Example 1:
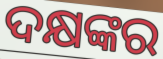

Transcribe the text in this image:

ଦକ୍ଷଙ୍କର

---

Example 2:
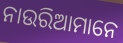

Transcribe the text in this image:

ନାଉରିଆମାନେ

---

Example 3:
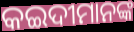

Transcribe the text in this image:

କଇଦୀମାନଙ୍କ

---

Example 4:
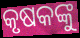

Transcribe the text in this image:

କୃଷକଙ୍କୁ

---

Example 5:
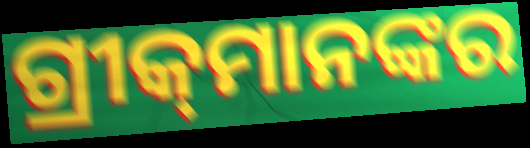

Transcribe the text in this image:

ଗ୍ରୀକ୍‌ମାନଙ୍କର